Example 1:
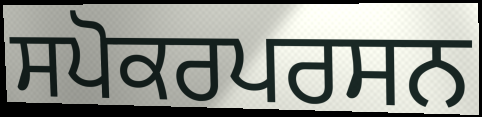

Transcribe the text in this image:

ਸਪੋਕਰਪਰਸਨ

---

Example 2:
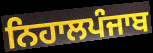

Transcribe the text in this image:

ਨਿਹਾਲਪੰਜਾਬ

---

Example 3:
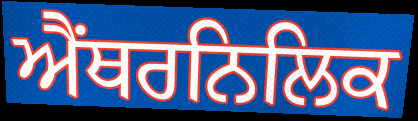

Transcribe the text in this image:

ਐਂਥਰਨਿਲਿਕ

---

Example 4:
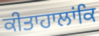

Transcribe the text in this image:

ਕੀਤਾਹਾਲਾਂਕਿ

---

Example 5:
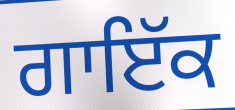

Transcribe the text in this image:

ਗਾਇੱਕ